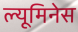
ल्यूमिनेस